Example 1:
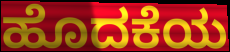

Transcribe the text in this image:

ಹೊದಕೆಯ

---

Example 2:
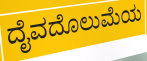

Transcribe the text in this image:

ದೈವದೊಲುಮೆಯ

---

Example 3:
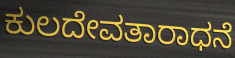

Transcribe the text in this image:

ಕುಲದೇವತಾರಾಧನೆ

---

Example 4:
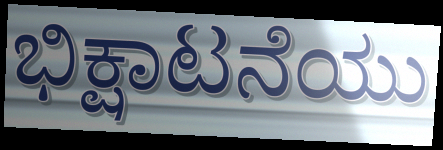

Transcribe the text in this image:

ಭಿಕ್ಷಾಟನೆಯು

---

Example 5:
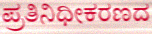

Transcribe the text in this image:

ಪ್ರತಿನಿಧೀಕರಣದ